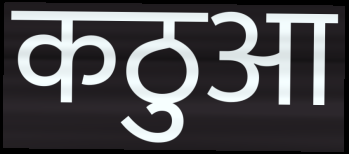
कठुआ